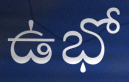
ఉభో